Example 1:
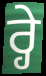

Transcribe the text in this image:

ਰ੍ਹੇ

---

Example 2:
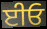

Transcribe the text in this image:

ਈਓ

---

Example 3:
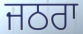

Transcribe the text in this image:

ਜਠਰਾ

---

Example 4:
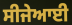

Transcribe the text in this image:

ਸੀਜੇਆਈ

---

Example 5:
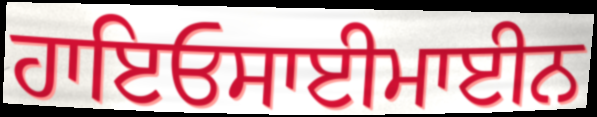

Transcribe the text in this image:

ਹਾਇਓਸਾਈਮਾਈਨ